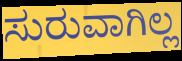
ಸುರುವಾಗಿಲ್ಲ